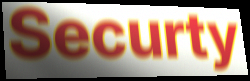
Securty